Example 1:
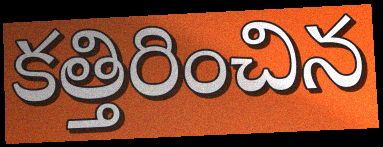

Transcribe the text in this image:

కత్తిరించిన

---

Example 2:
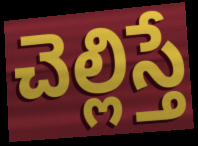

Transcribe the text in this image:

చెల్లిస్తే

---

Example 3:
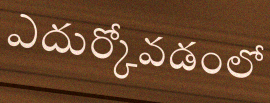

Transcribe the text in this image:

ఎదుర్కోవడంలో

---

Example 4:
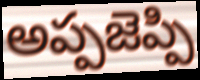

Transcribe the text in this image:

అప్పజెప్పి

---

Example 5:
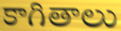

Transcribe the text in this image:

కాగితాలు